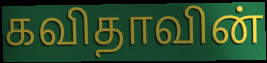
கவிதாவின்